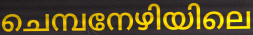
ചെമ്പനേഴിയിലെ